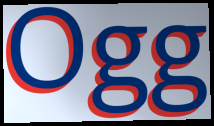
Ogg